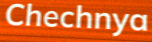
Chechnya